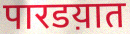
पारडय़ात